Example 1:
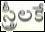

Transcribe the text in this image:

స్త్రీలకే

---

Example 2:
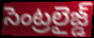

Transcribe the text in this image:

సెంట్రలైజ్డ్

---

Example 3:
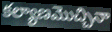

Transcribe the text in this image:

కల్యాణమొచ్చినా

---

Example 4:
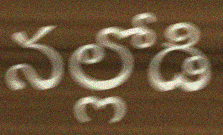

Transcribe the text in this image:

నల్లోడి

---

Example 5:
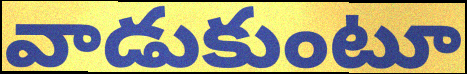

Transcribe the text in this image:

వాడుకుంటూ